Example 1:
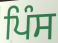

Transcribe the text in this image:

ਪਿੰਸ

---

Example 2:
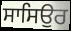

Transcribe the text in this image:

ਸਾਸਿਉਰ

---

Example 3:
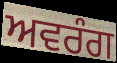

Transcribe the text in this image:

ਅਵਰੰਗ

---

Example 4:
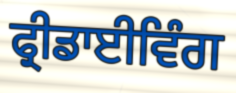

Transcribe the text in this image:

ਫ੍ਰੀਡਾਈਵਿੰਗ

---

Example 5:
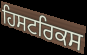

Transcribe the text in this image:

ਹਿਸਟਰਿਕਸ